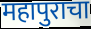
महापुराचा